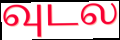
வுடல